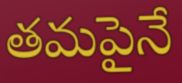
తమపైనే